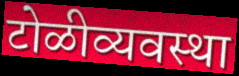
टोळीव्यवस्था